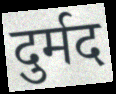
दुर्मद